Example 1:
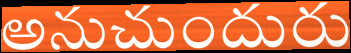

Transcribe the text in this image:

అనుచుందురు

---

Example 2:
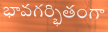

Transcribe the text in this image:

భావగర్భితంగా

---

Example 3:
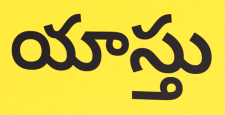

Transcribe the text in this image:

యాస్తు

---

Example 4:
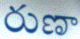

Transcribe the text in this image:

రుణా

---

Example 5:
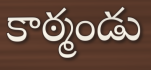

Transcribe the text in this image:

కాఠ్మండు